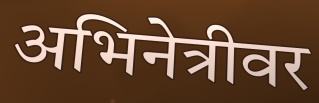
अभिनेत्रीवर